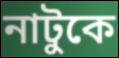
নাটুকে